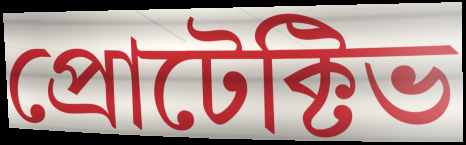
প্রোটেক্টিভ